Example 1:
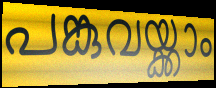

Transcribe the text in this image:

പങ്കുവയ്ക്കാം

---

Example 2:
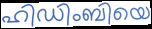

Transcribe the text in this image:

ഹിഡിംബിയെ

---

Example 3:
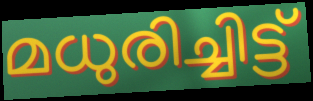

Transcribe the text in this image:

മധുരിച്ചിട്ട്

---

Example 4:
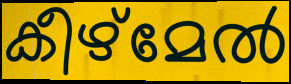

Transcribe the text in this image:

കീഴ്മേൽ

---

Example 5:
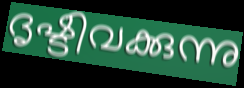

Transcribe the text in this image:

ദൃഷ്ടിവക്കുന്നു